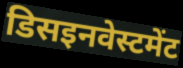
डिसइनवेस्टमेंट